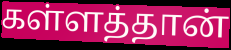
கள்ளத்தான்